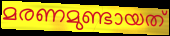
മരണമുണ്ടായത്